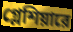
গ্লেশিয়ারে